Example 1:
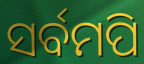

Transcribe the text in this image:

ସର୍ବମପି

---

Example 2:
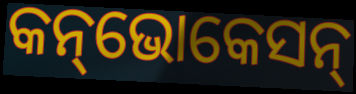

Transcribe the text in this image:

କନ୍‌ଭୋକେସନ୍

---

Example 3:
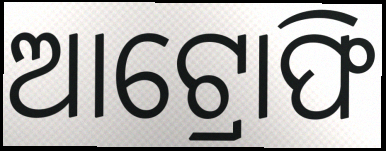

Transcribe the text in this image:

ଆଟ୍ରୋଫି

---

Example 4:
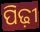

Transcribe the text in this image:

ପିଢ଼ୀ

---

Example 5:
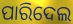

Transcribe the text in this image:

ପାରିଦେଲ